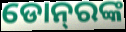
ଡୋନ୍‌ରଙ୍କ